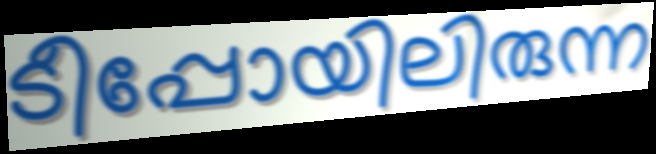
ടീപ്പോയിലിരുന്ന